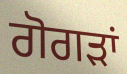
ਗੋਗੜਾਂ